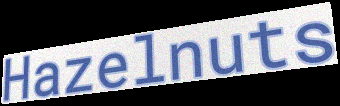
Hazelnuts